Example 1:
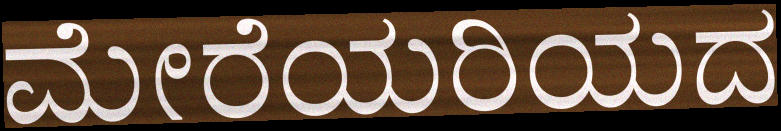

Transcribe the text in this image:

ಮೇರೆಯರಿಯದ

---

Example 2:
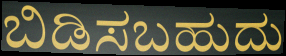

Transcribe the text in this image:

ಬಿಡಿಸಬಹುದು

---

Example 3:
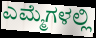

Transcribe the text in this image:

ಎಮ್ಮೆಗಳಲ್ಲಿ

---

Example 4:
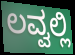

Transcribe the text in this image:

ಲವ್ವಲ್ಲಿ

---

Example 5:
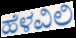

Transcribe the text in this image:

ಹೆಳವಿಲಿ